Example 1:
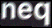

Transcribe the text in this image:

neq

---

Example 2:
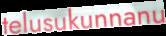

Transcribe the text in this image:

telusukunnanu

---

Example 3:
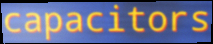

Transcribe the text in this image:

capacitors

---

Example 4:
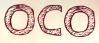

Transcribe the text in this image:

OCO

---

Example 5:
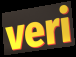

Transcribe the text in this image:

veri